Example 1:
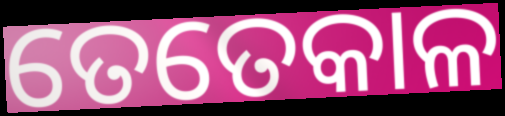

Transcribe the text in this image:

ତେତେକାଳ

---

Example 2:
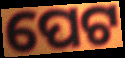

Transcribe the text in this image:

ପେଟ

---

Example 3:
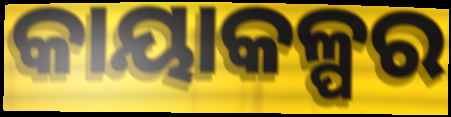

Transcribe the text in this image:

କାୟାକଳ୍ପର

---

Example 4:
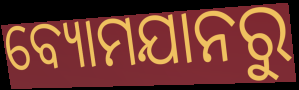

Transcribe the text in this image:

ବ୍ୟୋମଯାନରୁ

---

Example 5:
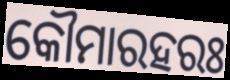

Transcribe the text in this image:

କୌମାରହରଃ